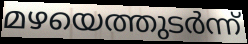
മഴയെത്തുടർന്ന്